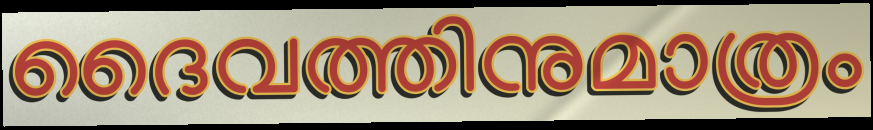
ദൈവത്തിനുമാത്രം